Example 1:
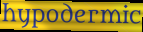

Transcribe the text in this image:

hypodermic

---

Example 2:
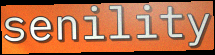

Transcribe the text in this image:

senility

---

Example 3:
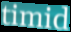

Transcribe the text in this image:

timid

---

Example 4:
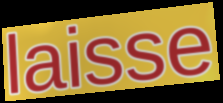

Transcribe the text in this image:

laisse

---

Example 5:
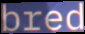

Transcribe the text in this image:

bred